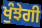
ਖੁੰਝੇਗੀ